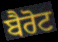
ਬੈਰੋਟ